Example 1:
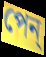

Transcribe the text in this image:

পেন্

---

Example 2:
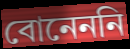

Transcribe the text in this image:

বোনেননি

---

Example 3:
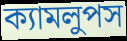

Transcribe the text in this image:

ক্যামলুপস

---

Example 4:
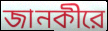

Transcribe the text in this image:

জানকীরে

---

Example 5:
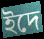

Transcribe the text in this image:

ইদে